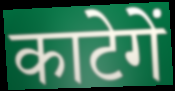
काटेगें